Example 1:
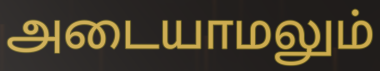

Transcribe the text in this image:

அடையாமலும்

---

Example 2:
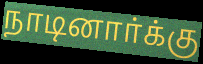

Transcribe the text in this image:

நாடினார்க்கு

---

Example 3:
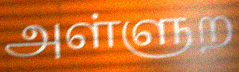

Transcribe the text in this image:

அள்ளுற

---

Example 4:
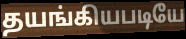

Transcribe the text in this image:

தயங்கியபடியே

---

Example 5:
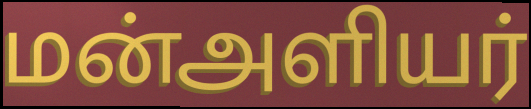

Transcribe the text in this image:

மன்அளியர்